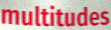
multitudes